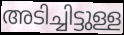
അടിച്ചിട്ടുള്ള